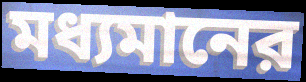
মধ্যমানের